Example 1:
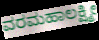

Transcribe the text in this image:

ವರಮಹಾಲಕ್ಷ್ಮೀ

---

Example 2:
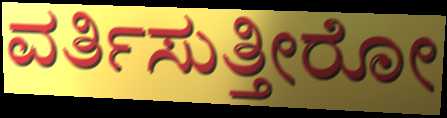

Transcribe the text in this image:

ವರ್ತಿಸುತ್ತೀರೋ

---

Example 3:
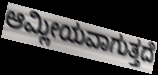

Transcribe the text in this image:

ಆಮ್ಲೀಯವಾಗುತ್ತದೆ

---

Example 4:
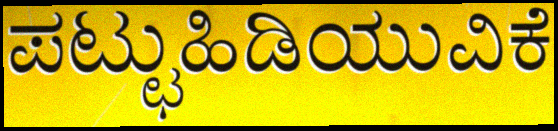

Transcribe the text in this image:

ಪಟ್ಟುಹಿಡಿಯುವಿಕೆ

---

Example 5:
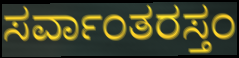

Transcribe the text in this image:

ಸರ್ವಾಂತರಸ್ತಂ